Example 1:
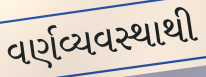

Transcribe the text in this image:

વર્ણવ્યવસ્થાથી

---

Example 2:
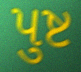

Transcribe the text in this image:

પુષ્ટ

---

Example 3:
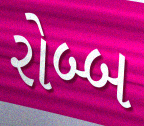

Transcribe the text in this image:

રોબ્બ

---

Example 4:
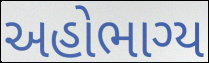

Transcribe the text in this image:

અહોભાગ્ય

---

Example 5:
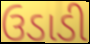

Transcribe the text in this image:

ઉડાડી